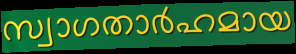
സ്വാഗതാർഹമായ